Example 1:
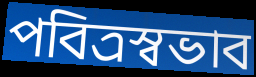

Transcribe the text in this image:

পবিত্রস্বভাব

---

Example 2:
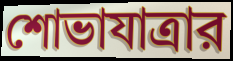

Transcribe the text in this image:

শোভাযাত্রার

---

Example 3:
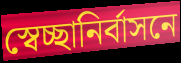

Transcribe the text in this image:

স্বেচ্ছানির্বাসনে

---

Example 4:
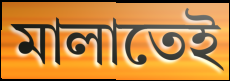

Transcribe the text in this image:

মালাতেই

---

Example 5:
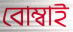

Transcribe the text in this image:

বোম্বাই